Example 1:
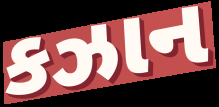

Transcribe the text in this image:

કઝાન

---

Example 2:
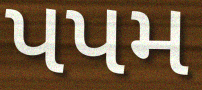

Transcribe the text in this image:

પપમ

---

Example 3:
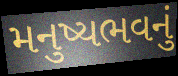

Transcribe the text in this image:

મનુષ્યભવનું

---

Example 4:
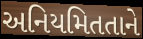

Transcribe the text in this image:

અનિયમિતતાને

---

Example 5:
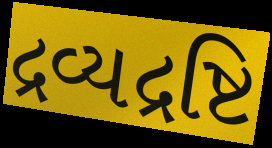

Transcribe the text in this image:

દ્રવ્યદ્રષ્ટિ